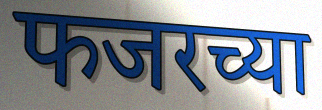
फजरच्या